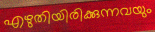
എഴുതിയിരിക്കുന്നവയും